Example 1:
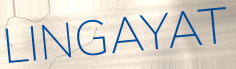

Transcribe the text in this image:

LINGAYAT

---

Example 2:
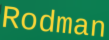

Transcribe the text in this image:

Rodman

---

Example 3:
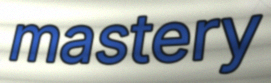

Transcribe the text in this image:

mastery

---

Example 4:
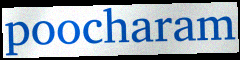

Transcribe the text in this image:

poocharam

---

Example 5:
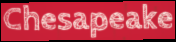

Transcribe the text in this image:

Chesapeake